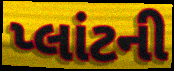
પ્લાંટની